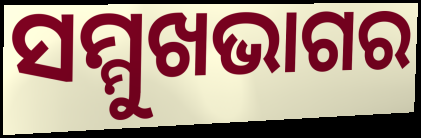
ସମ୍ମୁଖଭାଗର